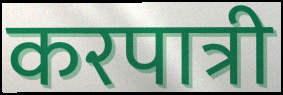
करपात्री